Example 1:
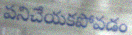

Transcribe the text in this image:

పనిచేయకపోవడం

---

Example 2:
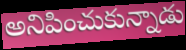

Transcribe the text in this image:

అనిపించుకున్నాడు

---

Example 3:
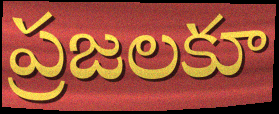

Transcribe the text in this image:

ప్రజలకూ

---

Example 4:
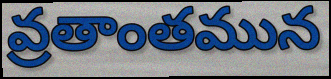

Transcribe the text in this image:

వ్రతాంతమున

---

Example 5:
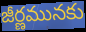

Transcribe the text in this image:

జీర్ణమునకు